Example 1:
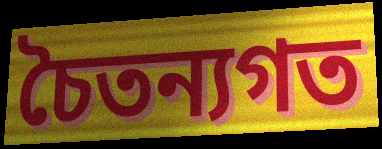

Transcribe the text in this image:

চৈতন্যগত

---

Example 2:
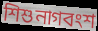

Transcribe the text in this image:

শিশুনাগবংশ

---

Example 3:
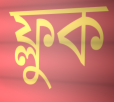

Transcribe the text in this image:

ফ্লুক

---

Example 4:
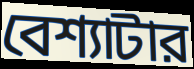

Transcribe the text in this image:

বেশ্যাটার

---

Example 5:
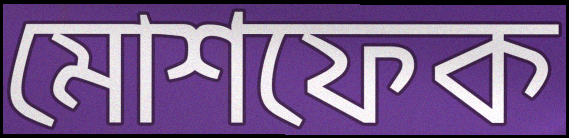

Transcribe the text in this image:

মোশফেক